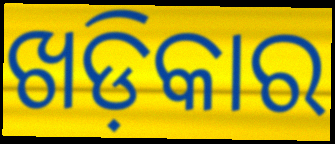
ଖଡ଼ିକାର